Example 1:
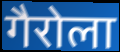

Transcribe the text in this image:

गैरोला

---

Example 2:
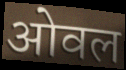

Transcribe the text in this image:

ओवल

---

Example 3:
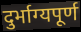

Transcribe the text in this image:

दुर्भाग्यपूर्ण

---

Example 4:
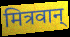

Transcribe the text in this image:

मित्रवान्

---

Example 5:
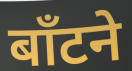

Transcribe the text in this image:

बाँटने